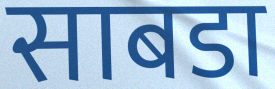
साबडा